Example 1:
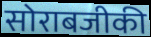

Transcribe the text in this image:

सोराबजीकी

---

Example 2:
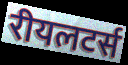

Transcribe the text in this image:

रीयलटर्स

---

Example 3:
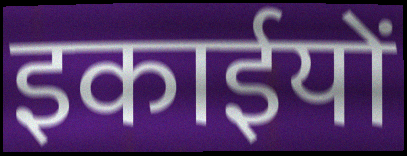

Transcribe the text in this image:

इकाईयों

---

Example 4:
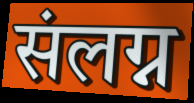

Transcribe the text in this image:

संलग्न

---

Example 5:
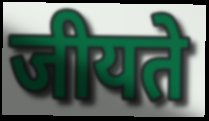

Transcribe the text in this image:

जीयते